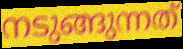
നടുങ്ങുന്നത്